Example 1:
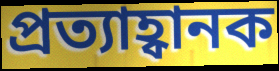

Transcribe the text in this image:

প্ৰত্যাহ্বানক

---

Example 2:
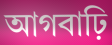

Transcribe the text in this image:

আগবাঢ়ি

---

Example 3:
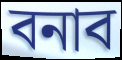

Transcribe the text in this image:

বনাব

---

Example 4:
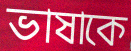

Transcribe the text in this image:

ভাষাকে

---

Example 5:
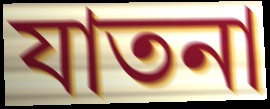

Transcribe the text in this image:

যাতনা